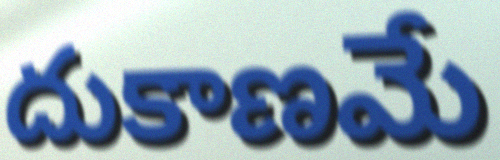
దుకాణమే